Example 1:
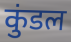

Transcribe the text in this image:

कुंडल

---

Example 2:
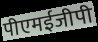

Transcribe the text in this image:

पीएमईजीपी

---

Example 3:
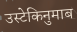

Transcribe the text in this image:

उस्टेकिनुमाब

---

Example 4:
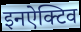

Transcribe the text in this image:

इनऐक्टिव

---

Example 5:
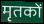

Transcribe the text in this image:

मृतकों